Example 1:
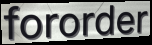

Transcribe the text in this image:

fororder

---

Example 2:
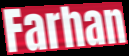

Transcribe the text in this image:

Farhan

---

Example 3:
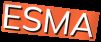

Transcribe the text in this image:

ESMA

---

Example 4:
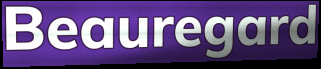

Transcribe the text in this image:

Beauregard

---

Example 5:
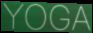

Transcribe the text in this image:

YOGA